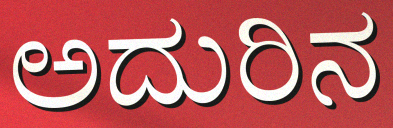
ಅದುರಿನ